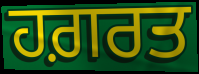
ਹਗ਼ਰਤ